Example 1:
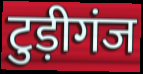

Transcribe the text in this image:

टुड़ीगंज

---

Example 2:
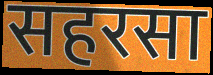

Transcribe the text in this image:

सहरसा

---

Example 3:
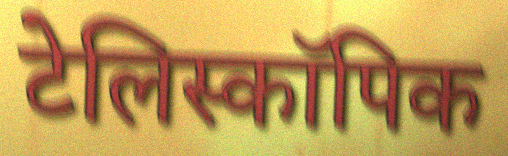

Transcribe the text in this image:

टेलिस्कॉपिक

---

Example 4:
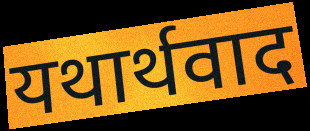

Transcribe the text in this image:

यथार्थवाद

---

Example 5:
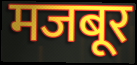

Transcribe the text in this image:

मजबूर